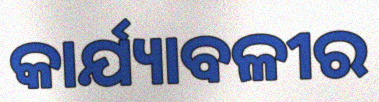
କାର୍ଯ୍ୟାବଳୀର